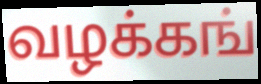
வழக்கங்